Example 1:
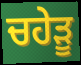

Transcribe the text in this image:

ਚਹੇੜੂ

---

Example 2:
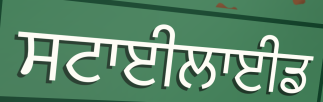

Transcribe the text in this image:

ਸਟਾਈਲਾਈਡ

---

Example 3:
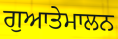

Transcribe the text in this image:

ਗੁਆਤੇਮਾਲਨ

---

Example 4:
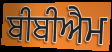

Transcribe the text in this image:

ਬੀਬੀਐਮ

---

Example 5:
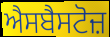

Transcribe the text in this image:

ਐਸਬੈਸਟੋਜ਼